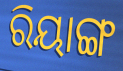
ରିୟାଙ୍ଗ